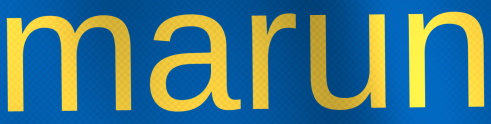
marun